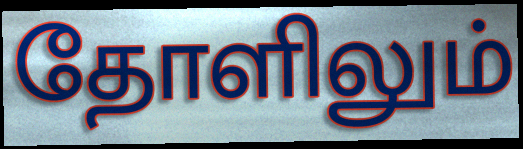
தோளிலும்